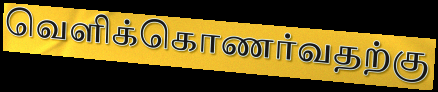
வெளிக்கொணர்வதற்கு